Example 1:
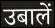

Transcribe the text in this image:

उबालें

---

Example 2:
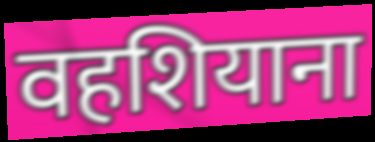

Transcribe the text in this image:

वहशियाना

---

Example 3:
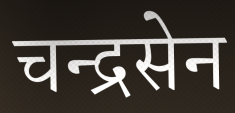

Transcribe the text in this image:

चन्द्रसेन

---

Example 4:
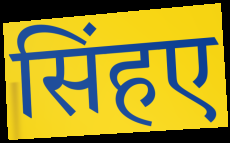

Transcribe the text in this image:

सिंहए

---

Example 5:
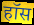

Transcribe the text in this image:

हॉस